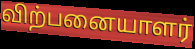
விற்பனையாளர்